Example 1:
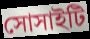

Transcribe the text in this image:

সোসাইটি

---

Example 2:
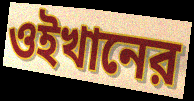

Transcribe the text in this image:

ওইখানের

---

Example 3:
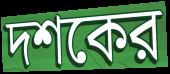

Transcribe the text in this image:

দশকের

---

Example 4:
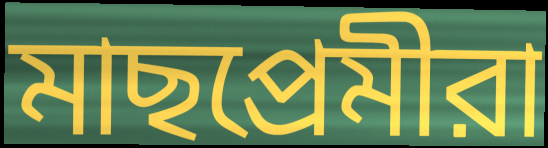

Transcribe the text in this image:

মাছপ্রেমীরা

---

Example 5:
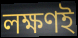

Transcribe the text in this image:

লক্ষণই